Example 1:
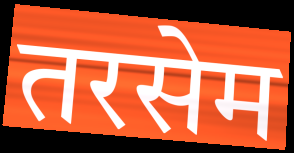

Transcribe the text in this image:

तरसेम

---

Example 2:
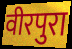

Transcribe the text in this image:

वीरपुरा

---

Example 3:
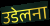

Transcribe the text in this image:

उडेलना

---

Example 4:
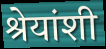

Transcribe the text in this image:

श्रेयांशी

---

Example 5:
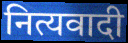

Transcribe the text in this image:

नित्यवादी